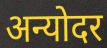
अन्योदर